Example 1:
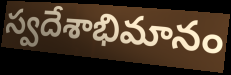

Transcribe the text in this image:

స్వదేశాభిమానం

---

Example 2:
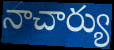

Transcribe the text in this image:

నాచార్యు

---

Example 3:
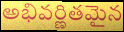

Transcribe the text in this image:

అభివర్ణితమైన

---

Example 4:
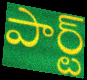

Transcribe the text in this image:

పార్ట్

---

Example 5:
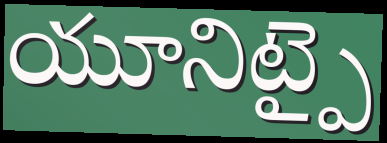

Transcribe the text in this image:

యూనిట్పై